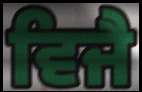
ਵਿਜੈ